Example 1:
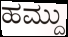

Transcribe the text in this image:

ಹಮ್ದು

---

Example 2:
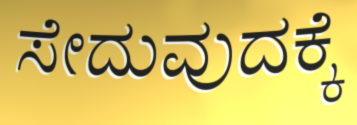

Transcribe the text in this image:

ಸೇದುವುದಕ್ಕೆ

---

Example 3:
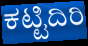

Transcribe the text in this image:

ಕಟ್ಟಿದಿರಿ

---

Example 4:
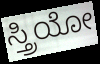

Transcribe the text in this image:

ಸ್ತ್ರಿಯೋ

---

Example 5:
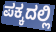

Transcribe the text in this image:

ಪಕ್ಕದಲ್ಲಿ